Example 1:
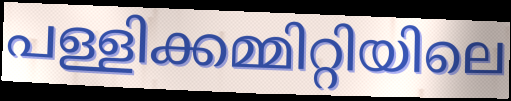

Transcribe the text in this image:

പള്ളിക്കമ്മിറ്റിയിലെ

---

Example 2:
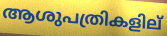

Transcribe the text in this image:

ആശുപത്രികളില്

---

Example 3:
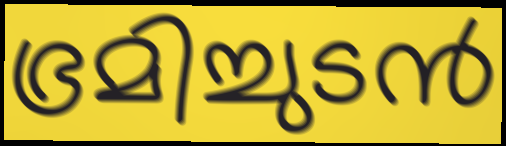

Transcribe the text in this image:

ഭ്രമിച്ചുടൻ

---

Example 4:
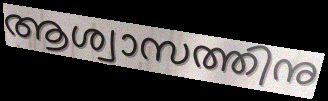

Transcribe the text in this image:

ആശ്വാസത്തിനു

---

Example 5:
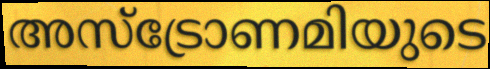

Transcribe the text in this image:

അസ്ട്രോണമിയുടെ